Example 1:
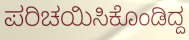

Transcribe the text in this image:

ಪರಿಚಯಿಸಿಕೊಂಡಿದ್ದ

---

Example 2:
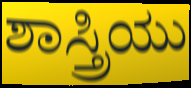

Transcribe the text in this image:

ಶಾಸ್ತ್ರಿಯು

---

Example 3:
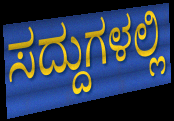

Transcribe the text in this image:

ಸದ್ದುಗಳಲ್ಲಿ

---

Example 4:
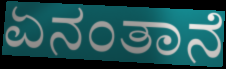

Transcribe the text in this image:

ಏನಂತಾನೆ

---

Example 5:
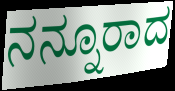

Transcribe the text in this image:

ನನ್ನೂರಾದ